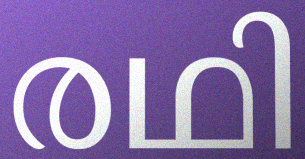
രഥി